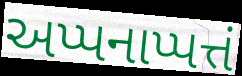
અપ્પનાપ્પત્તં